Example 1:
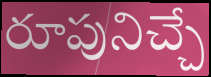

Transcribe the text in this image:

రూపునిచ్చే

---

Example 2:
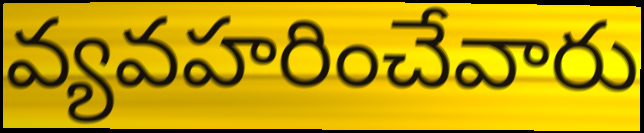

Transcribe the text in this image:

వ్యవహరించేవారు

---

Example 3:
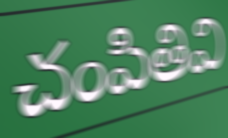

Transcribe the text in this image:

చంపితివి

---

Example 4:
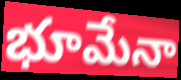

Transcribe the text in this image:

భూమేనా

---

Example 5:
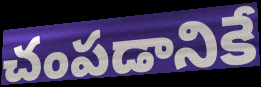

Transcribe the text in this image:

చంపడానికే